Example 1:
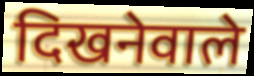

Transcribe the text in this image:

दिखनेवाले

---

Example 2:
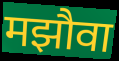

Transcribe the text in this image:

मझौवा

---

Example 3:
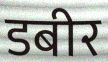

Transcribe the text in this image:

डबीर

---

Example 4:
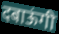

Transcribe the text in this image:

दबाऊंगी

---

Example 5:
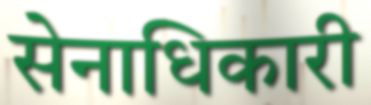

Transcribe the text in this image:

सेनाधिकारी